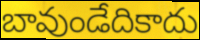
బావుండేదికాదు